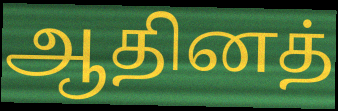
ஆதினத்